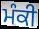
ਮੰਕੀ